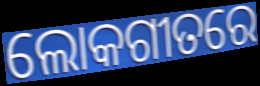
ଲୋକଗୀତରେ